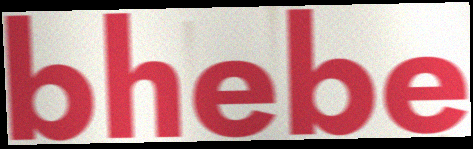
bhebe